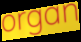
organ